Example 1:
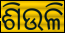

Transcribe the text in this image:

ଶିଉଳି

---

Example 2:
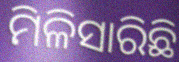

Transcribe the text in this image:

ମିଳିସାରିଛି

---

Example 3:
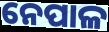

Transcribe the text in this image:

ନେପାଳ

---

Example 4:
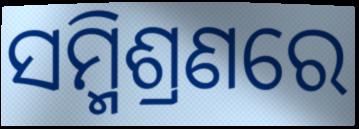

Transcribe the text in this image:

ସମ୍ମିଶ୍ରଣରେ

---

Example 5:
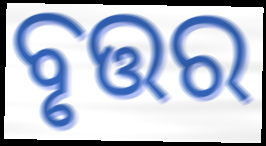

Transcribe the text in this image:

ବୃତ୍ତର